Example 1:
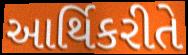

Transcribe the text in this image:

આર્થિકરીતે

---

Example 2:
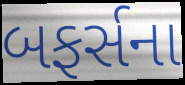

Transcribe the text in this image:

બફર્સના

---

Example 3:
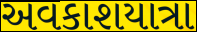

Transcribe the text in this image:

અવકાશયાત્રા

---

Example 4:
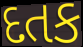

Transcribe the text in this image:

દતક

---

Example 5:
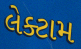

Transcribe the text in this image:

લેક્ટામ